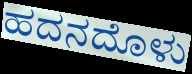
ಹದನದೊಳು